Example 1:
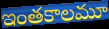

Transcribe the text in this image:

ఇంతకాలమూ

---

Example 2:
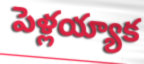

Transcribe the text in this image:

పెళ్లయ్యాక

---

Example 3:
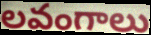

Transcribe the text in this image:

లవంగాలు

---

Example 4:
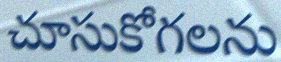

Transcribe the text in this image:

చూసుకోగలను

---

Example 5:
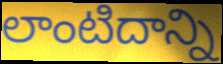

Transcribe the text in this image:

లాంటిదాన్ని